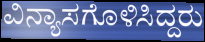
ವಿನ್ಯಾಸಗೊಳಿಸಿದ್ದರು